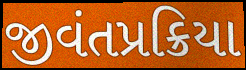
જીવંતપ્રક્રિયા